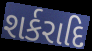
શર્કરાદિ